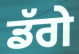
ਡੱਗੇ